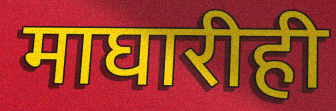
माघारीही